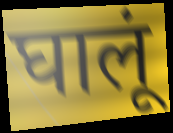
घालूं